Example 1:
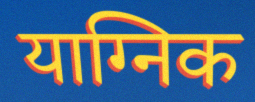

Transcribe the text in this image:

याग्निक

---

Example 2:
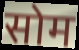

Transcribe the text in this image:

सोम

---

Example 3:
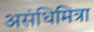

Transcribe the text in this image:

असंधिमित्रा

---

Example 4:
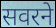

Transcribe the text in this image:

सवरने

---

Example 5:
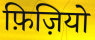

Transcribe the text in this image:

फ़िज़ियो